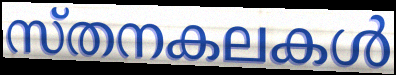
സ്തനകലകൾ